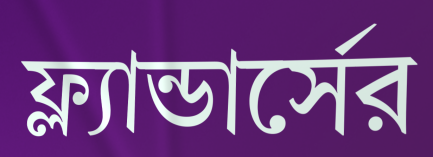
ফ্ল্যান্ডার্সের